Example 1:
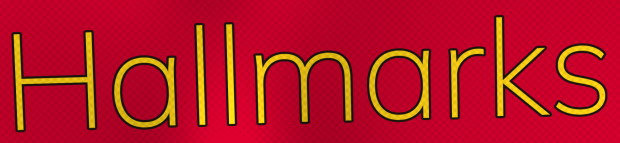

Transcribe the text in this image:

Hallmarks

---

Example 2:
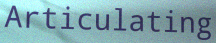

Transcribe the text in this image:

Articulating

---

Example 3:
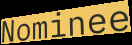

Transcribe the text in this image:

Nominee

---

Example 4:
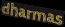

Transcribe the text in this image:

dharmas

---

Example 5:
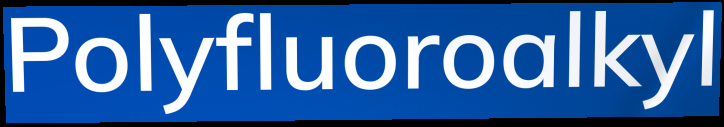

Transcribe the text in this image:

Polyfluoroalkyl